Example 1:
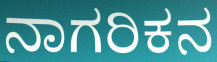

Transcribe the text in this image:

ನಾಗರಿಕನ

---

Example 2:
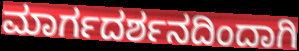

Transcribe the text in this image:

ಮಾರ್ಗದರ್ಶನದಿಂದಾಗಿ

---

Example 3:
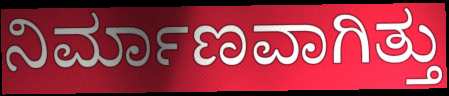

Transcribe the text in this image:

ನಿರ್ಮಾಣವಾಗಿತ್ತು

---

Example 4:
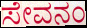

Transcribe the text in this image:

ಸೇವನಂ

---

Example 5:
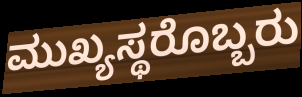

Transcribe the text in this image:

ಮುಖ್ಯಸ್ಥರೊಬ್ಬರು